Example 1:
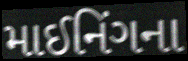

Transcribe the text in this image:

માઈનિંગના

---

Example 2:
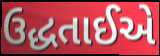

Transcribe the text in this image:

ઉદ્ધતાઈએ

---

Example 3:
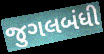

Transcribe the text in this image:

જુગલબંધી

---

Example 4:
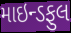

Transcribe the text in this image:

માઇન્ડફુલ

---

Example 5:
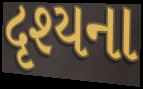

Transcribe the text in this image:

દૃશ્યના